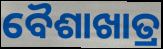
ବୈଶାଖାତ୍ର